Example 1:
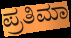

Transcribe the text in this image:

ಪ್ರತಿಮಾ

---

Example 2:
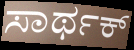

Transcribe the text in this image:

ಸಾರ್ಥಕ್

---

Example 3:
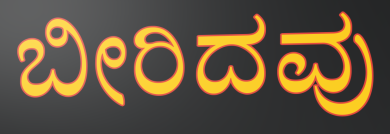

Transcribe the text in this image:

ಬೀರಿದವು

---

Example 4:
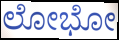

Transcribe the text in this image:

ಲೋಭೋ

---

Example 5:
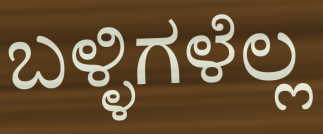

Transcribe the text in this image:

ಬಳ್ಳಿಗಳೆಲ್ಲ